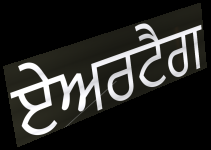
ਏਅਰਟੈਗ